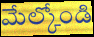
మేల్కోండి